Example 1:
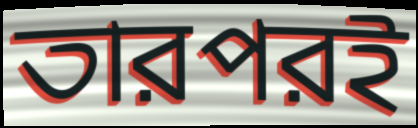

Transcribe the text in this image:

তারপরই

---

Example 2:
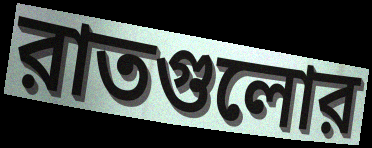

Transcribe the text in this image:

রাতগুলোর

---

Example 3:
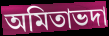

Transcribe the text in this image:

অমিতাভদা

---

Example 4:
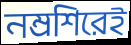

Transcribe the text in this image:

নম্রশিরেই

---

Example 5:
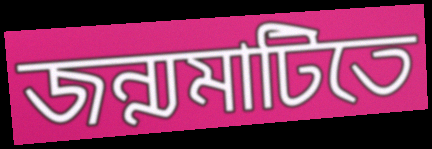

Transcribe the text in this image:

জন্মমাটিতে